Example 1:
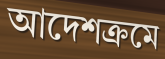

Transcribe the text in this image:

আদেশক্রমে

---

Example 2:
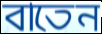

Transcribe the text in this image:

বাতেন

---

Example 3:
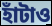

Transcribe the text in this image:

হাঁটাও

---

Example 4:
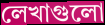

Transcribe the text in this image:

লেখাগুলো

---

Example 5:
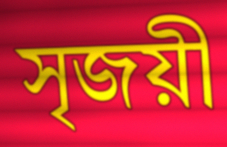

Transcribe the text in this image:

সৃজয়ী